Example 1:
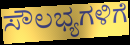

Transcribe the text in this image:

ಸೌಲಭ್ಯಗಳಿಗೆ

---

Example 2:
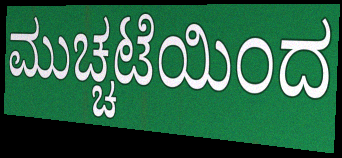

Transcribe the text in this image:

ಮುಚ್ಚಟೆಯಿಂದ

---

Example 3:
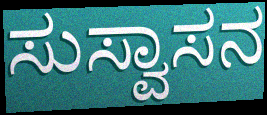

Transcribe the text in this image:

ಸುಸ್ವಾಸನ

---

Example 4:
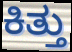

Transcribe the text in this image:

ಕಿತ್ತು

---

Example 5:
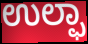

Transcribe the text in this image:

ಉಲ್ಫಾ